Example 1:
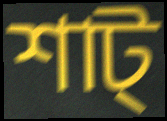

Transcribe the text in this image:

শাট্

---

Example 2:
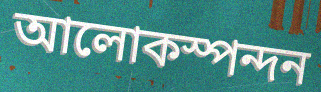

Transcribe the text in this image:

আলোকস্পন্দন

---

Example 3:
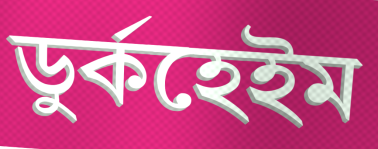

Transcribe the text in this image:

ডুর্কহেইম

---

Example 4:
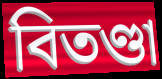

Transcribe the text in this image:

বিতণ্ডা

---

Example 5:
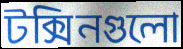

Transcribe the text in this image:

টক্সিনগুলো